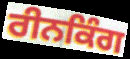
ਰੀਨਕਿੰਗ